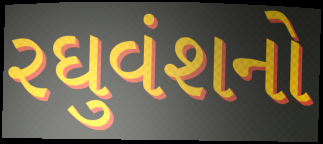
રઘુવંશનો